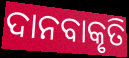
ଦାନବାକୃତି